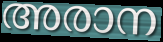
അരാന